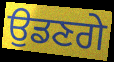
ਉਡਣਗੇ